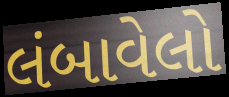
લંબાવેલો